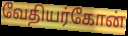
வேதியர்கோன்